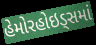
હેમોરહોઇડ્સમાં